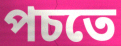
পচতে